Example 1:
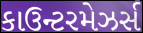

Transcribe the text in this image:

કાઉન્ટરમેઝર્સ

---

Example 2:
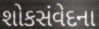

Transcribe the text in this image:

શોકસંવેદના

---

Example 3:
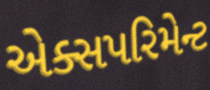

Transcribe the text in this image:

એક્સપરિમેન્ટ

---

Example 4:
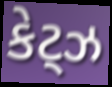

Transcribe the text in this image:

કેટ્ઝ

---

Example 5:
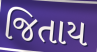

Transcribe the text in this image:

જિતાય